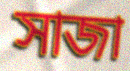
সাজা